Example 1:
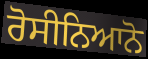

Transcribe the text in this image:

ਰੋਸੀਨਿਆਨੋ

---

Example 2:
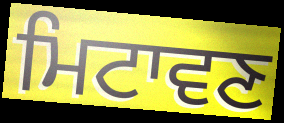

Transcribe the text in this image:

ਮਿਟਾਵਣ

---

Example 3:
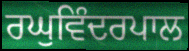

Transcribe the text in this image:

ਰਘੁਵਿੰਦਰਪਾਲ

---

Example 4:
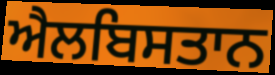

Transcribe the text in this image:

ਐਲਬਿਸਤਾਨ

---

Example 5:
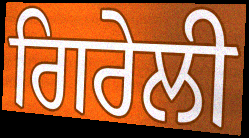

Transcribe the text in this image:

ਗਿਰੇਲੀ